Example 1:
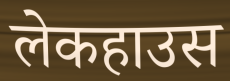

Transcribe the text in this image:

लेकहाउस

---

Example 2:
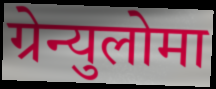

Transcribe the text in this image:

ग्रेन्युलोमा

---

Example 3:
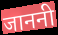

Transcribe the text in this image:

जाननी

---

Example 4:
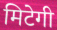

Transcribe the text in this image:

मिटेगी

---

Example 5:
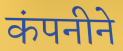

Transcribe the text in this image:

कंपनीने